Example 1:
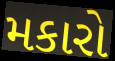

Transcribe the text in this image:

મકારો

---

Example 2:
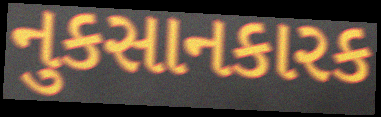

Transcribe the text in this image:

નુકસાનકારક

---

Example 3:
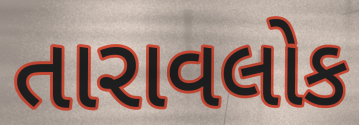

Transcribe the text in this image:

તારાવલોક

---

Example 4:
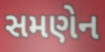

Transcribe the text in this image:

સમણેન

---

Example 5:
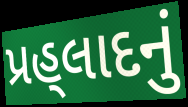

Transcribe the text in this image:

પ્રહ્‌લાદનું